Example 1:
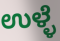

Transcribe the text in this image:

ಉಳ್ಳೆ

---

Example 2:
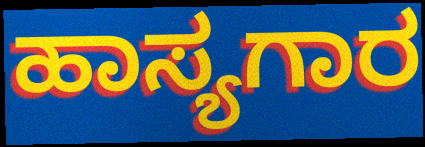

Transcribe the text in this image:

ಹಾಸ್ಯಗಾರ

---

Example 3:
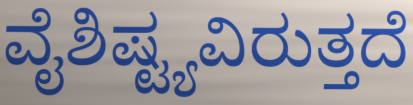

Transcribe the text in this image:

ವೈಶಿಷ್ಟ್ಯವಿರುತ್ತದೆ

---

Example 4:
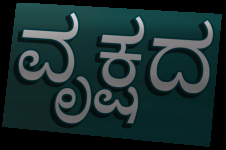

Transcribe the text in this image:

ವೃಕ್ಷದ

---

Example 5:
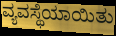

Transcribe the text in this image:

ವ್ಯವಸ್ಥೆಯಾಯಿತು